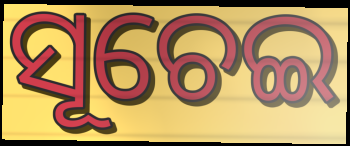
ସୂଚେଇ